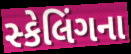
સ્કેલિંગના